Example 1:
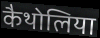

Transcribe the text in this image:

कैथोलिया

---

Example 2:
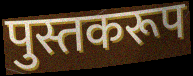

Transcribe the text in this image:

पुस्तकरूप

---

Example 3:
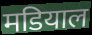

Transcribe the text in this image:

मडियाल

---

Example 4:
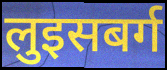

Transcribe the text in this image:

लुइसबर्ग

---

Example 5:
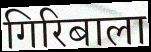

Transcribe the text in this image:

गिरिबाला